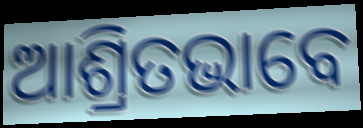
ଆଶ୍ରିତଭାବେ